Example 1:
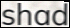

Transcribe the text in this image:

shad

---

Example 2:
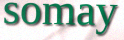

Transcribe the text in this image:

somay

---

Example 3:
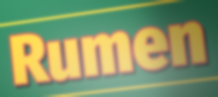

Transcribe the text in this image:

Rumen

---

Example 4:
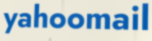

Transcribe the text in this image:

yahoomail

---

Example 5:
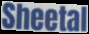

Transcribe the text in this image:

Sheetal